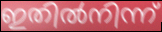
ഇതിൽനിന്ന്